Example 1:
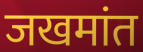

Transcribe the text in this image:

जखमांत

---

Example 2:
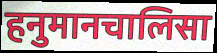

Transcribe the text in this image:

हनुमानचालिसा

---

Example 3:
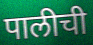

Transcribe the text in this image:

पालीची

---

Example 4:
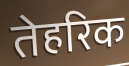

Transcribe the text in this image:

तेहरिक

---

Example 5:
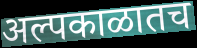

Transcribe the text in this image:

अल्पकाळातच